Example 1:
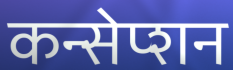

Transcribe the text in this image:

कन्सेप्शन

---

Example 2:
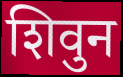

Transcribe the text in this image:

शिवुन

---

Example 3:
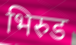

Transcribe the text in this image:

भिरुड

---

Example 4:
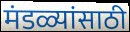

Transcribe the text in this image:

मंडळ्यांसाठी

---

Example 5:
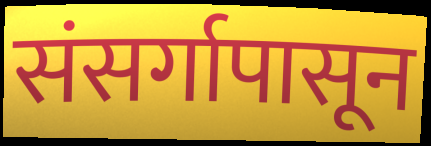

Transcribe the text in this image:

संसर्गापासून